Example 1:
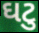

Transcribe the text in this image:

ઘટુ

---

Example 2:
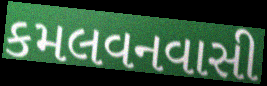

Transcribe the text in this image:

કમલવનવાસી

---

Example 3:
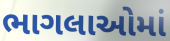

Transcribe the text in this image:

ભાગલાઓમાં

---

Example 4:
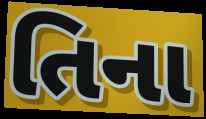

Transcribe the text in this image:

તિના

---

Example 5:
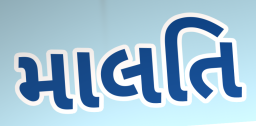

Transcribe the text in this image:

માલતિ